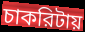
চাকরিটায়